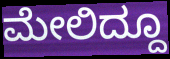
ಮೇಲಿದ್ದೂ